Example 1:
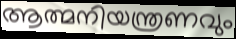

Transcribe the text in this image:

ആത്മനിയന്ത്രണവും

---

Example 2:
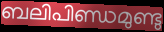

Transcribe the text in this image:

ബലിപിണ്ഡമുണ്ടു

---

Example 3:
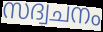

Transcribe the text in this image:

സദ്വചനം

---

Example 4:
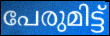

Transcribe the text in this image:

പേരുമിട്ട്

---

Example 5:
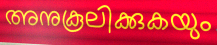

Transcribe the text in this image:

അനുകൂലിക്കുകയും